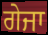
ਗੇਜਾ